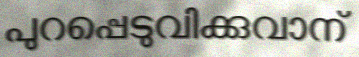
പുറപ്പെടുവിക്കുവാന്